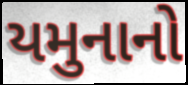
યમુનાનો